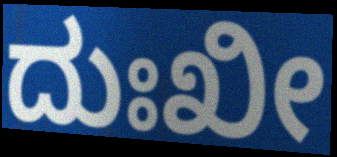
ದುಃಖೀ